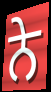
ਨੇ